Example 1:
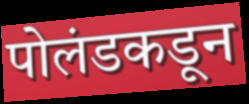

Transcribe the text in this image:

पोलंडकडून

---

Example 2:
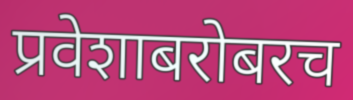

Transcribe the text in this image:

प्रवेशाबरोबरच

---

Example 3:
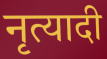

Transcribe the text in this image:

नृत्यादी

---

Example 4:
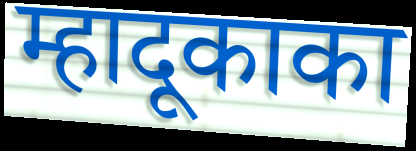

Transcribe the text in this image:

म्हादूकाका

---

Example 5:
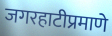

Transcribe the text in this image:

जगरहाटीप्रमाणे